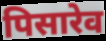
पिसारेव